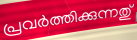
പ്രവർത്തിക്കുന്നതു്